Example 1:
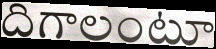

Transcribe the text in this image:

దిగాలంటూ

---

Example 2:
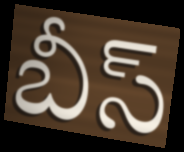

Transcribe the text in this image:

బీస్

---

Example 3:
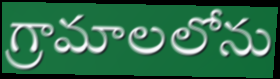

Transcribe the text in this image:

గ్రామాలలోను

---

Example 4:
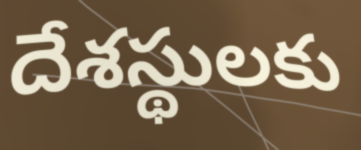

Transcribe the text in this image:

దేశస్థులకు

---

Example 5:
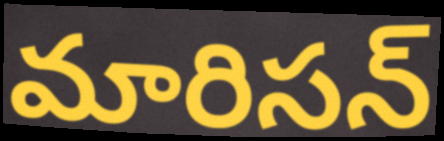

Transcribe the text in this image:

మారిసన్